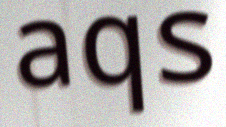
aqs